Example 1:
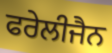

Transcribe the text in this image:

ਫਰੇਲੀਜੈਨ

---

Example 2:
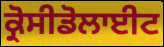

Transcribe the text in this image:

ਕ੍ਰੋਸੀਡੋਲਾਈਟ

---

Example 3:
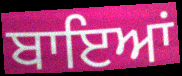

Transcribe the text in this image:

ਬਾਇਆਂ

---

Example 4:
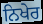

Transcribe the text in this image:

ਨਿਖੇਰ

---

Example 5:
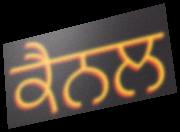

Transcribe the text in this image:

ਕੈਨਲ